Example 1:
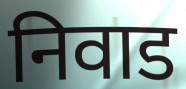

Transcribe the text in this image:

निवाड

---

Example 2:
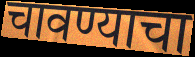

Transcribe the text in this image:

चावण्याचा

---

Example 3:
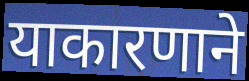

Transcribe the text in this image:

याकारणाने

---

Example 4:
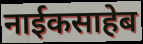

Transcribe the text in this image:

नाईकसाहेब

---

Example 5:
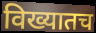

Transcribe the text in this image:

विख्यातच